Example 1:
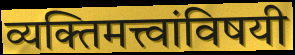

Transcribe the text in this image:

व्यक्तिमत्त्वांविषयी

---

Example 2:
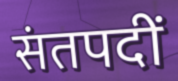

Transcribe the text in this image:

संतपदीं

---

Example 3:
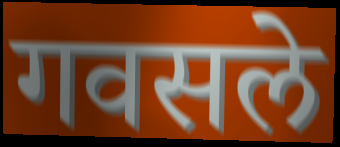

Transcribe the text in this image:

गवसले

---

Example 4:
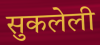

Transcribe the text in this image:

सुकलेली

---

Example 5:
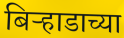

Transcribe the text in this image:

बिऱ्हाडाच्या